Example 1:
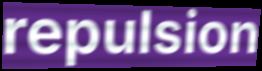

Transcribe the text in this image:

repulsion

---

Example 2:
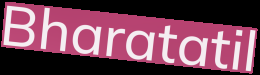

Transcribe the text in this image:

Bharatatil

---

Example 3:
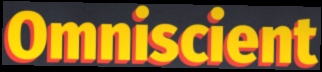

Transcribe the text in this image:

Omniscient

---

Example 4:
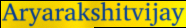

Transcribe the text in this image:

Aryarakshitvijay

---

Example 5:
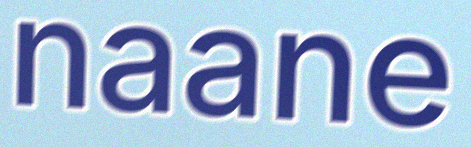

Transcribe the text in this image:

naane